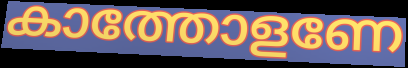
കാത്തോളണേ